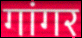
गांगर